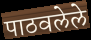
पाठवलेले